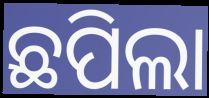
ଛପିଲା